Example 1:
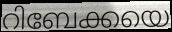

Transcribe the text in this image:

റിബേക്കയെ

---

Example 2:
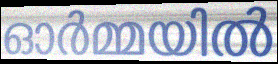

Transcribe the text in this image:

ഓർമ്മയിൽ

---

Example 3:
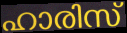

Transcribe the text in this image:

ഹാരിസ്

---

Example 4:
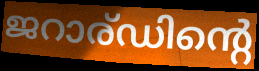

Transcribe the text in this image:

ജറാര്ഡിന്റെ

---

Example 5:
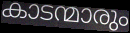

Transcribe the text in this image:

കാടന്മാരും